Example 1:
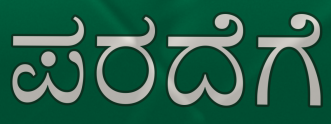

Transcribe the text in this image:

ಪರದೆಗೆ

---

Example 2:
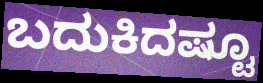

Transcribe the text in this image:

ಬದುಕಿದಷ್ಟೂ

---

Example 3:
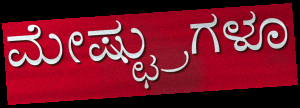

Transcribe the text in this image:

ಮೇಷ್ಟ್ರುಗಳೂ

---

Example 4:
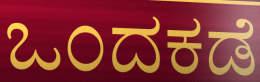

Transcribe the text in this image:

ಒಂದಕಡೆ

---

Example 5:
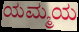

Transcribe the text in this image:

ಯಮ್ಮಯ